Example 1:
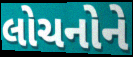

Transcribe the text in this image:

લોચનોને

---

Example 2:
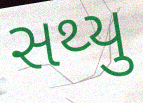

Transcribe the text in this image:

સથ્યુ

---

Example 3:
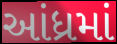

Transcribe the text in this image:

આંધ્રમાં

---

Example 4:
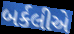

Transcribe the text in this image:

બર્કલીએ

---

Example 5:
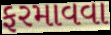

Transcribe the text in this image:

ફરમાવવા